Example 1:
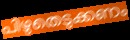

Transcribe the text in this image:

പിഴുതെടുക്കണം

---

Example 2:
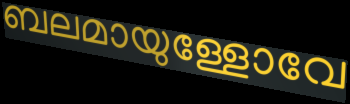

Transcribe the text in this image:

ബലമായുള്ളോവേ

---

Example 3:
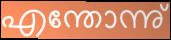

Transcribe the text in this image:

എന്തോന്നു്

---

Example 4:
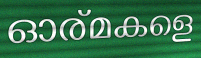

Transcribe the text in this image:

ഓര്മകളെ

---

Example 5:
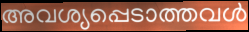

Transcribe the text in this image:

അവശ്യപ്പെടാത്തവൾ